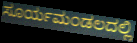
ಸೂರ್ಯಮಂಡಲದಲ್ಲಿ